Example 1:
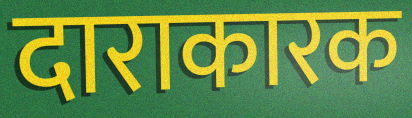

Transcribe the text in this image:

दाराकारक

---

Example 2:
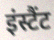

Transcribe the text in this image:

इंस्टैंट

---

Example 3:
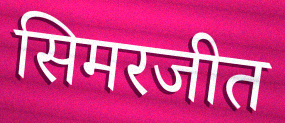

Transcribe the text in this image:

सिमरजीत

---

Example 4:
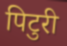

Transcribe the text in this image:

पिटुरी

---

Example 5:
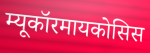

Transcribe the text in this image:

म्यूकॉरमायकोसिस